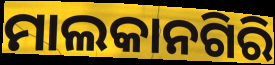
ମାଲକାନଗିରି